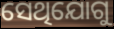
ସେଥିଯୋଗୁ